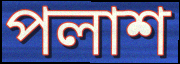
পলাশ